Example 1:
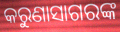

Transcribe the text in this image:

କରୁଣାସାଗରଙ୍କ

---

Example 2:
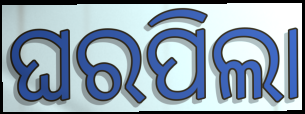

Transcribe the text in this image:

ଘରପିଲା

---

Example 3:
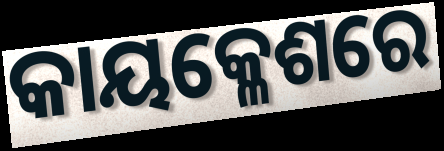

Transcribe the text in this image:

କାୟକ୍ଳେଶରେ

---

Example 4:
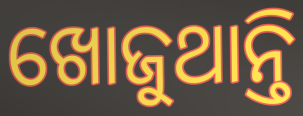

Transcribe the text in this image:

ଖୋଜୁଥାନ୍ତି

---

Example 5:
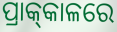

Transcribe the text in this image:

ପ୍ରାକ୍‍କାଳରେ